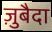
ज़ुबैदा